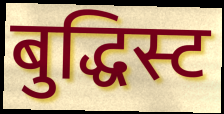
बुद्धिस्ट